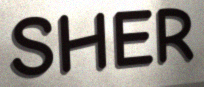
SHER